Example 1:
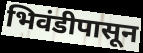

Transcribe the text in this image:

भिवंडीपासून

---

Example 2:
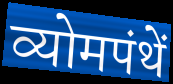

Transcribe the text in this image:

व्योमपंथें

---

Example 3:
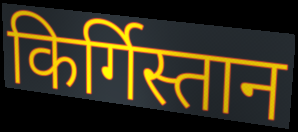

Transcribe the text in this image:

किर्गिस्तान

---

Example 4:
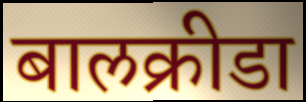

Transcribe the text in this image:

बालक्रीडा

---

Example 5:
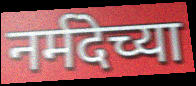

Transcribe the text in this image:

नर्मदेच्या